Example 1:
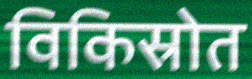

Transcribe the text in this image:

विकिस्रोत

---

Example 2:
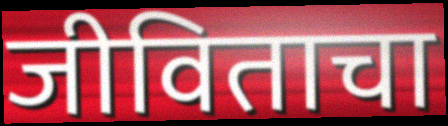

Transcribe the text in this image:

जीविताचा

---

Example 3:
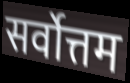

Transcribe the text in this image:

सर्वोत्तम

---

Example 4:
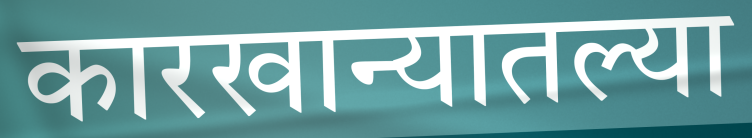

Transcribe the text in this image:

कारखान्यातल्या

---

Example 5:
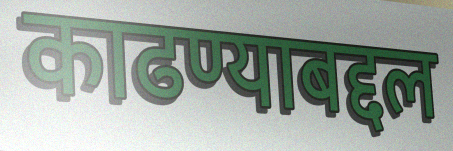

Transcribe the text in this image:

काढण्याबद्दल